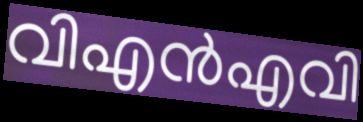
വിഎൻഎവി